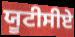
ਯੂਟੀਸੀਏ